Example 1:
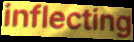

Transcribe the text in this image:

inflecting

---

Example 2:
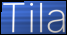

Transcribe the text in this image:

Tila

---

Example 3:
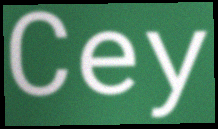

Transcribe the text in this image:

Cey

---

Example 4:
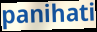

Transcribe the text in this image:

panihati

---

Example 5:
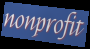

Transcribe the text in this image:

nonprofit